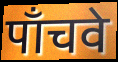
पाँचवे